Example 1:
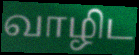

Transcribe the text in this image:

வாழிட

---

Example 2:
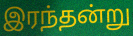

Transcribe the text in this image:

இரந்தன்று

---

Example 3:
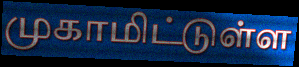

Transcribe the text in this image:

முகாமிட்டுள்ள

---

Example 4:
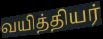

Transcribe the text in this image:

வயித்தியர்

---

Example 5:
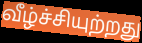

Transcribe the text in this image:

வீழ்ச்சியுற்றது